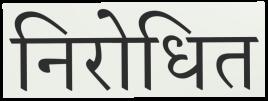
निरोधित